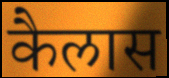
कैलास